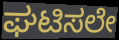
ಘಟಿಸಲೇ